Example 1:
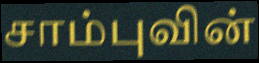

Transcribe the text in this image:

சாம்புவின்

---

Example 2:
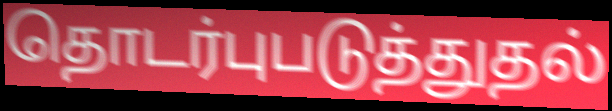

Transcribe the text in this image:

தொடர்புபடுத்துதல்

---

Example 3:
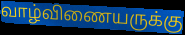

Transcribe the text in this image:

வாழ்விணையருக்கு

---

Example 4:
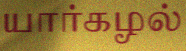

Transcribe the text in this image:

யார்கழல்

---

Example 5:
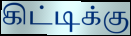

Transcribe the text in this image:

கிட்டிக்கு